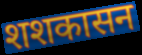
शशकासन